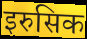
इरुसिक